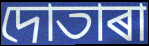
দোতাৰা